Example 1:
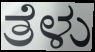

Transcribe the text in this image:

ತೆಳು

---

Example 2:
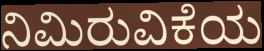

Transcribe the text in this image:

ನಿಮಿರುವಿಕೆಯ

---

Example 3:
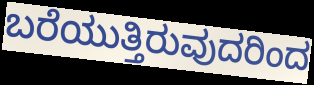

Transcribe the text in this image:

ಬರೆಯುತ್ತಿರುವುದರಿಂದ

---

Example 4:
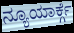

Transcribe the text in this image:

ನ್ಯೂಯಾರ್ಕ್ಗೆ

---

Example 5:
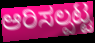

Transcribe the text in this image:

ಆರಿಸಲ್ಪಟ್ಟ